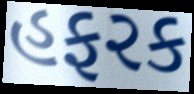
હફરક